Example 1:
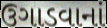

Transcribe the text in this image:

ઉગાડવાનાં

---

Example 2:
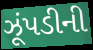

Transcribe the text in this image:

ઝૂંપડીની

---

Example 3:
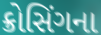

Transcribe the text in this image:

ક્રોસિંગના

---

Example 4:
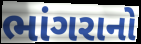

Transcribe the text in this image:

ભાંગરાનો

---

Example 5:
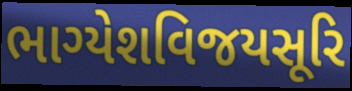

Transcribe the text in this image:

ભાગ્યેશવિજયસૂરિ